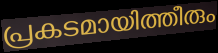
പ്രകടമായിത്തീരും